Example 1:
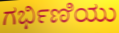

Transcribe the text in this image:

ಗರ್ಭಿಣಿಯು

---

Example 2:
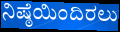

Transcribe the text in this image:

ನಿಷ್ಠೆಯಿಂದಿರಲು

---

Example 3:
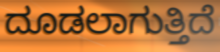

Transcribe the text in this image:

ದೂಡಲಾಗುತ್ತಿದೆ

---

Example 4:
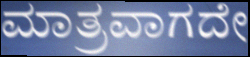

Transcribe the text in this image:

ಮಾತ್ರವಾಗದೇ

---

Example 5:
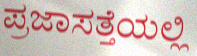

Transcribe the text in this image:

ಪ್ರಜಾಸತ್ತೆಯಲ್ಲಿ